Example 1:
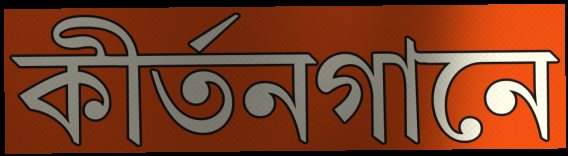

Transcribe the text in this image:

কীর্তনগানে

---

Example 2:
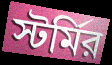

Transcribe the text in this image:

স্টর্মির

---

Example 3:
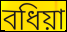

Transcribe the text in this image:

বধিয়া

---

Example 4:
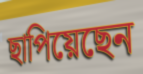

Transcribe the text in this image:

ছাপিয়েছেন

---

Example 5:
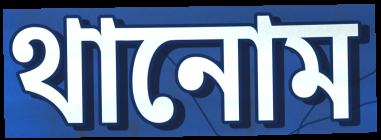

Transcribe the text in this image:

থানোম